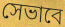
সেভাবে